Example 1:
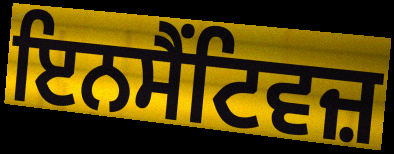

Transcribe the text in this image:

ਇਨਸੈਂਟਿਵਜ਼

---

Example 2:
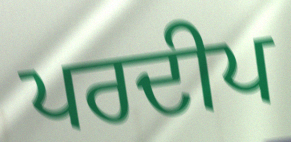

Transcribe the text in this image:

ਪਰਦੀਪ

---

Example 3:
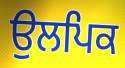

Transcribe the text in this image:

ਉਲਪਿਕ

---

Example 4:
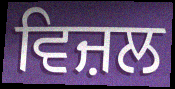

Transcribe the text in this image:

ਵਿਜ਼ਲ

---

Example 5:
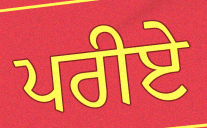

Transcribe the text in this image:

ਪਰੀਏ